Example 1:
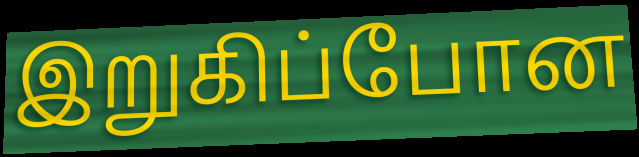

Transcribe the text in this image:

இறுகிப்போன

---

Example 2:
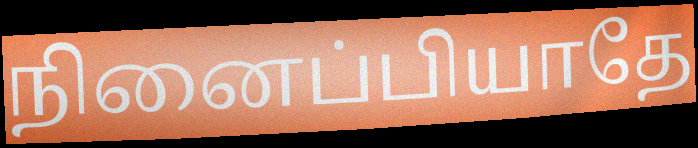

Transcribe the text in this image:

நினைப்பியாதே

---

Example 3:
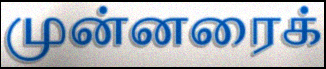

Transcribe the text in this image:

முன்னரைக்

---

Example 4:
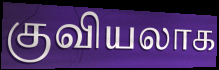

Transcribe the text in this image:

குவியலாக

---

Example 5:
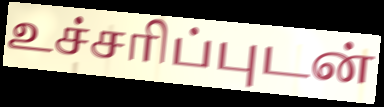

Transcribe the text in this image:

உச்சரிப்புடன்